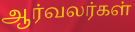
ஆர்வலர்கள்